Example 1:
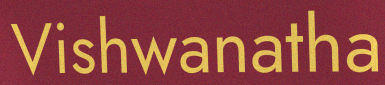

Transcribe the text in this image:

Vishwanatha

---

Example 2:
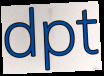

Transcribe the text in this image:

dpt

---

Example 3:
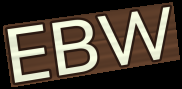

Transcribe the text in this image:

EBW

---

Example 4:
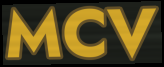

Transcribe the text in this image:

MCV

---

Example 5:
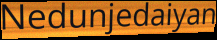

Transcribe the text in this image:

Nedunjedaiyan